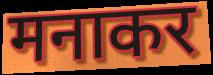
मनाकर